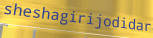
sheshagirijodidar